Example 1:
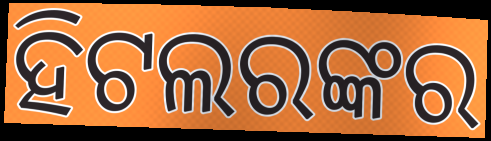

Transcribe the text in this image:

ହିଟଲରଙ୍କର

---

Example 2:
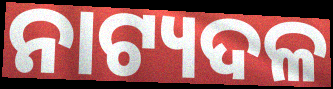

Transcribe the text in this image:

ନାଟ୍ୟଦଳ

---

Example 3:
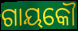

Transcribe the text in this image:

ଗାୟକୌ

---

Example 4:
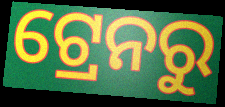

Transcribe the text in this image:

ଟ୍ରେନରୁ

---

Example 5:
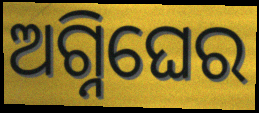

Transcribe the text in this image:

ଅଗ୍ନିଘେର